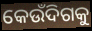
କେଉଁଦିଗକୁ